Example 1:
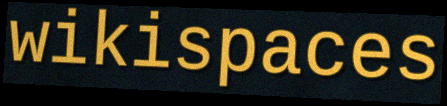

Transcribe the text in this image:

wikispaces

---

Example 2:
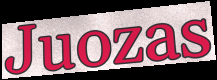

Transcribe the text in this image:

Juozas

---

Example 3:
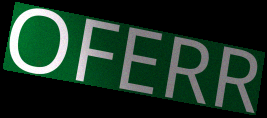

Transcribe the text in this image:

OFERR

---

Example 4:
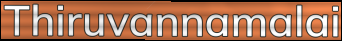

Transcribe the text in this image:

Thiruvannamalai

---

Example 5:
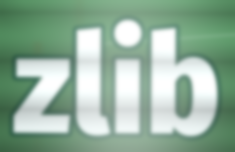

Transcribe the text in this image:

zlib